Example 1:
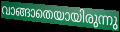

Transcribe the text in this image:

വാങ്ങാതെയായിരുന്നു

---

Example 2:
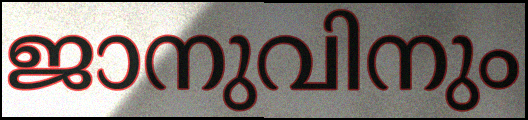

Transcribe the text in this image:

ജാനുവിനും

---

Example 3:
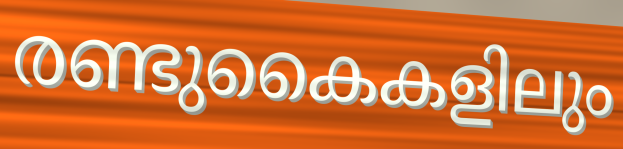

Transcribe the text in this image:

രണ്ടുകൈകളിലും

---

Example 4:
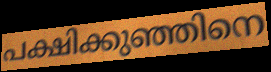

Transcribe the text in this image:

പക്ഷിക്കുഞ്ഞിനെ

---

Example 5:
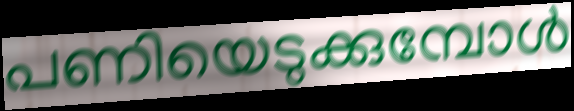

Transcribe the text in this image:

പണിയെടുക്കുമ്പോൾ